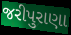
જરીપુરાણા